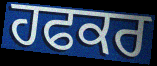
ਹਫਕਰ